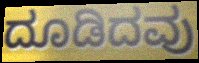
ದೂಡಿದವು